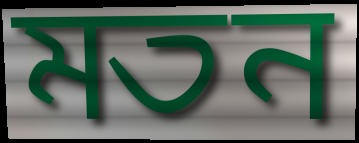
মতন